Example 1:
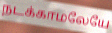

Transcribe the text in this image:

நடக்காமலேயே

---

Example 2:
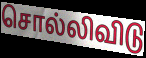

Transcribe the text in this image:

சொல்லிவிடு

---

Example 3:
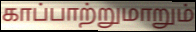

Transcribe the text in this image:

காப்பாற்றுமாறும்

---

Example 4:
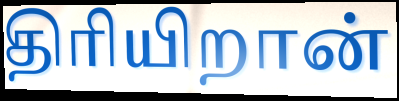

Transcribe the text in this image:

திரியிறான்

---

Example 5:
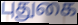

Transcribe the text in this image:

புதுகை